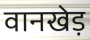
वानखेड़